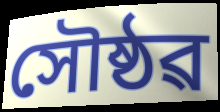
সৌষ্ঠৱ